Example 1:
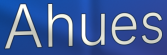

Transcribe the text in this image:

Ahues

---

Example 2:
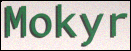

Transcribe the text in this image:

Mokyr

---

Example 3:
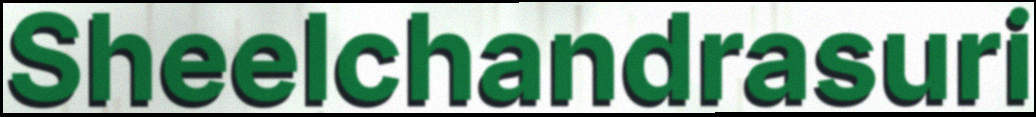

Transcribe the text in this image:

Sheelchandrasuri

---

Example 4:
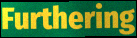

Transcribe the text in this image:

Furthering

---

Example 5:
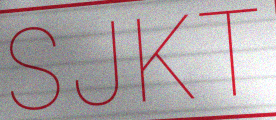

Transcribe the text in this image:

SJKT